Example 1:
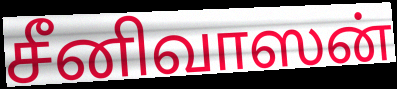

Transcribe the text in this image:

சீனிவாஸன்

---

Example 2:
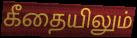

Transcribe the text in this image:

கீதையிலும்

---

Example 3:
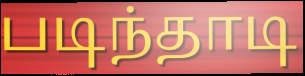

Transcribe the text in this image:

படிந்தாடி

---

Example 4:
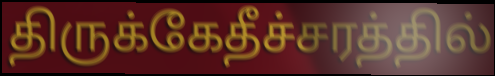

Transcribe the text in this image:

திருக்கேதீச்சரத்தில்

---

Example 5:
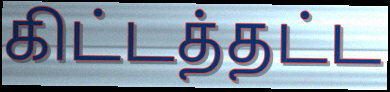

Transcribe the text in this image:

கிட்டத்தட்ட